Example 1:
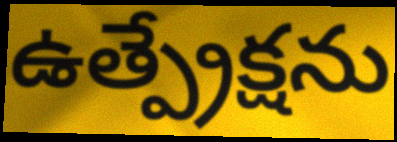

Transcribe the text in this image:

ఉత్ప్రేక్షను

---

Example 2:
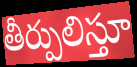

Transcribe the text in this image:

తీర్పులిస్తూ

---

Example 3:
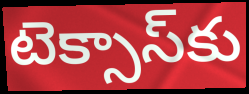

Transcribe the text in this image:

టెక్సాస్‌కు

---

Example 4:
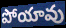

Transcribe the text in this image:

పోయావు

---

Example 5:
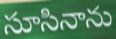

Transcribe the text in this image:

సూసినాను